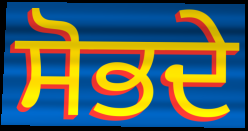
ਸੋਭਦੇ